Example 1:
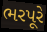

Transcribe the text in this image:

ભરપૂરે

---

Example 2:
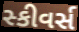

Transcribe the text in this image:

સ્કીવર્સ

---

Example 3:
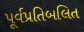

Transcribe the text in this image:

પૂર્વપ્રતિબલિત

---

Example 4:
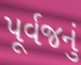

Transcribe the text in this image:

પૂર્વજનું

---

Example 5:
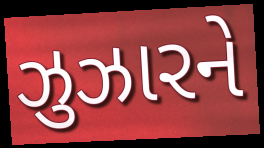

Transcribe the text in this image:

ઝુઝારને